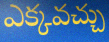
ఎక్కవచ్చు